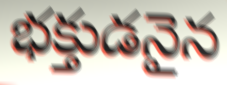
భక్తుడనైన